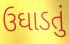
ઉઘાડતું